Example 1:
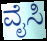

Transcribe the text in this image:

ವೈಸಿ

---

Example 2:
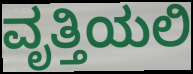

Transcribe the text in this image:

ವೃತ್ತಿಯಲಿ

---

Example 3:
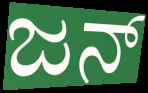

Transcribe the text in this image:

ಜನ್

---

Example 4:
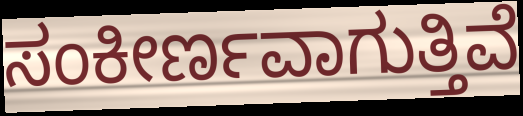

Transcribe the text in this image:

ಸಂಕೀರ್ಣವಾಗುತ್ತಿವೆ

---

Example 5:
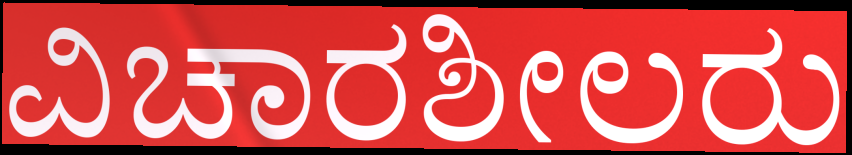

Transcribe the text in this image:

ವಿಚಾರಶೀಲರು